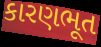
કારણભૂત